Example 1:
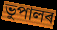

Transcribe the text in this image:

ভুপালৰ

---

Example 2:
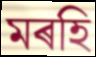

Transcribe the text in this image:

মৰহি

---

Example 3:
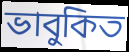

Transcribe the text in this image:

ভাবুকিত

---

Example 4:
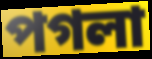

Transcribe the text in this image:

পগলা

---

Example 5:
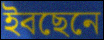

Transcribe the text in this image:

ইবছেনে